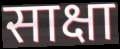
साक्षा